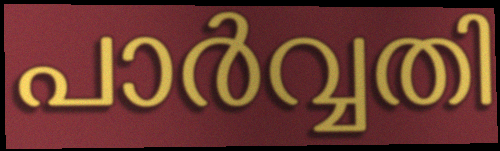
പാർവ്വതി